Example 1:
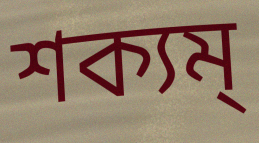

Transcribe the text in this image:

শক্যম্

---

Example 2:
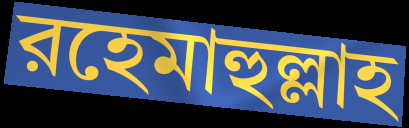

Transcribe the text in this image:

রহেমাহুল্লাহ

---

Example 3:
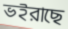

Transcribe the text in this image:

ভইরাছে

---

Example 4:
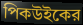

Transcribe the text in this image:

পিকউইকের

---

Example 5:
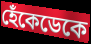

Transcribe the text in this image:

হেঁকেডেকে